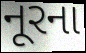
નૂરના